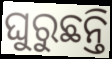
ଘୁରୁଛନ୍ତି